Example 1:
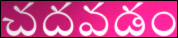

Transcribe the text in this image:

చదవడం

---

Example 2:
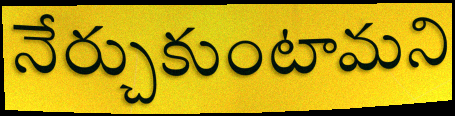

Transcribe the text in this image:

నేర్చుకుంటామని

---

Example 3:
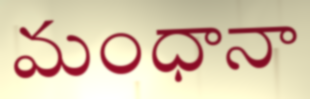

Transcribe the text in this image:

మంధానా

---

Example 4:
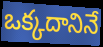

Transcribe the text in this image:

ఒక్కదానినే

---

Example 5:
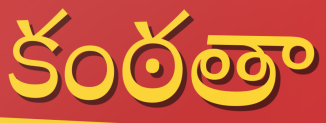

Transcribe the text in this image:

కంఠతా